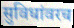
सुविधांवरच